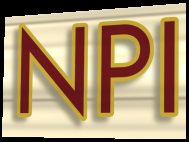
NPI